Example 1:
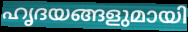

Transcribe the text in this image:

ഹൃദയങ്ങളുമായി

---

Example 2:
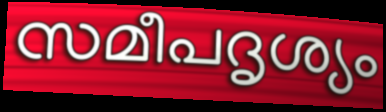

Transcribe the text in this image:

സമീപദൃശ്യം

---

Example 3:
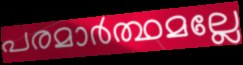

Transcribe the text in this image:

പരമാർത്ഥമല്ലേ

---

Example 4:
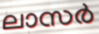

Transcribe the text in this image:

ലാസർ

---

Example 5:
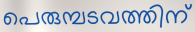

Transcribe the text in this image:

പെരുമ്പടവത്തിന്